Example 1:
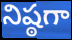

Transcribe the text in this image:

నిష్ఠగా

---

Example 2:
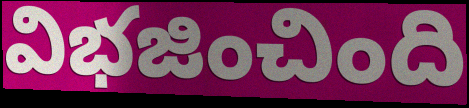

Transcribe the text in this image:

విభజించింది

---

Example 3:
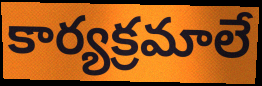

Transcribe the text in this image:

కార్యక్రమాలే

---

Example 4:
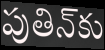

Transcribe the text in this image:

పుతిన్‌కు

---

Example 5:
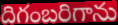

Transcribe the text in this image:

దిగంబరిగాను